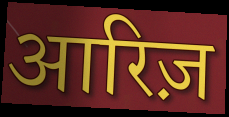
आरिज़